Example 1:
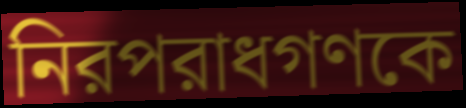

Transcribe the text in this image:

নিরপরাধগণকে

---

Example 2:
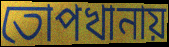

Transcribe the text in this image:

তোপখানায়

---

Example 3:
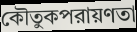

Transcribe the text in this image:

কৌতুকপরায়ণতা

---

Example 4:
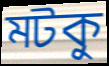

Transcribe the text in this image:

মটকু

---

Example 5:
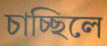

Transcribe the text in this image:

চাচ্ছিলে